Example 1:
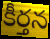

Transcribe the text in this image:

కీర్తన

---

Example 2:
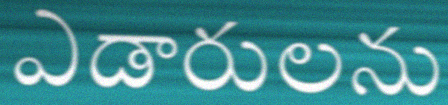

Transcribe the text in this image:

ఎడారులను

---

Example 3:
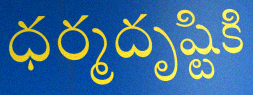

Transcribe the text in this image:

ధర్మదృష్టికి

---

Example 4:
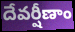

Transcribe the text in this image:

దేవర్షీణాం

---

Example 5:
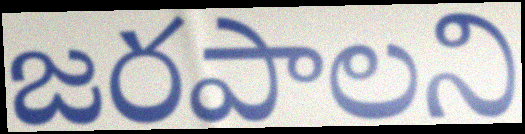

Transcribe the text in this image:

జరపాలని